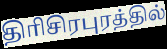
திரிசிரபுரத்தில்